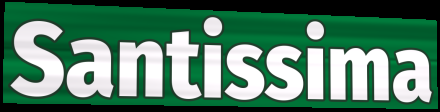
Santissima